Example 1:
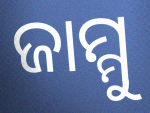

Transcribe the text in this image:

ଜାମ୍ମୁ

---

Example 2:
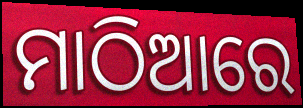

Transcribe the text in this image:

ମାଠିଆରେ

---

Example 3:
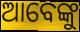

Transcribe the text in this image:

ଆବେଙ୍କୁ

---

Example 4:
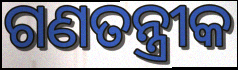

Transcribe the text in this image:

ଗଣତନ୍ତ୍ରୀକ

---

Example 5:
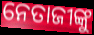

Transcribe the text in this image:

ନେତାଜୀଙ୍କୁ